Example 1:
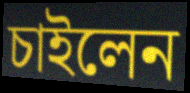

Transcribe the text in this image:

চাইলেন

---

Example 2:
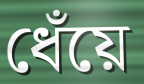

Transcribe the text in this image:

ধেঁয়ে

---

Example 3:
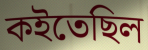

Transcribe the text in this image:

কইতেছিল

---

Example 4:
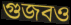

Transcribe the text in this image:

গুজবও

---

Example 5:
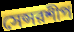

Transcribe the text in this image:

সেন্সরশীপ